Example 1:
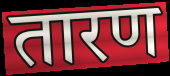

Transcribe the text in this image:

तारण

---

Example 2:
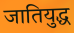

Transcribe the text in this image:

जातियुद्ध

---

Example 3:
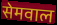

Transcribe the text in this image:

सेमवाल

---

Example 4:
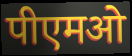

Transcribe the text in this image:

पीएमओ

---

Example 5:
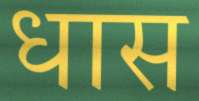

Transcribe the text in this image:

धास